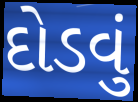
દોડવું